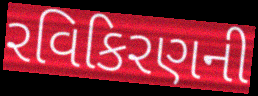
રવિકિરણની